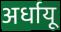
अर्धायू